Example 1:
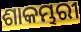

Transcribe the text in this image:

ଶାକମ୍ଭରୀ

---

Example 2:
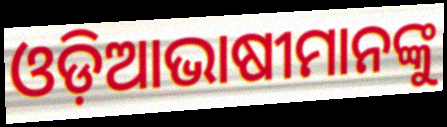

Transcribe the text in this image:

ଓଡ଼ିଆଭାଷୀମାନଙ୍କୁ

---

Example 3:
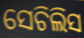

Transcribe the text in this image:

ସେଚିଲିସ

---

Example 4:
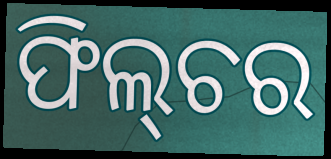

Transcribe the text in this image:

ଫିଲ୍‌ଚର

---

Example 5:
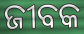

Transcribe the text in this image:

ଜୀବକ